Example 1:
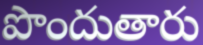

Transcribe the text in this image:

పొందుతారు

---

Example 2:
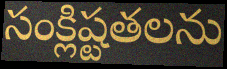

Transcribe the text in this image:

సంక్లిష్టతలను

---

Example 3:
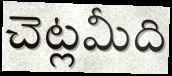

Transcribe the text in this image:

చెట్లమీది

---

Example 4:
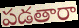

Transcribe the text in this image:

పడతారా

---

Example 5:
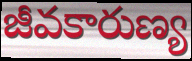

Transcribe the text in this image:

జీవకారుణ్య